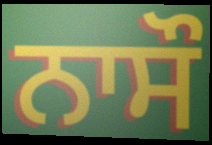
ਨਾਸੌ